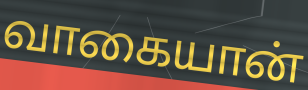
வாகையான்